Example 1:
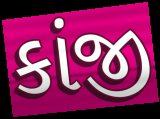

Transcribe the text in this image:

કાંજી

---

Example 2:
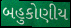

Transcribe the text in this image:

બહુકોણીય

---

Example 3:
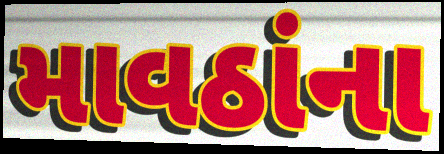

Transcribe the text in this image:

માવઠાંના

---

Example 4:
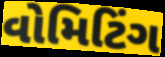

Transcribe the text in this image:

વોમિટિંગ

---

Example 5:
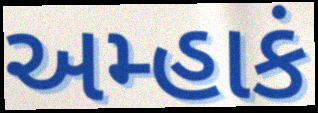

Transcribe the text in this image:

અમ્હાકં